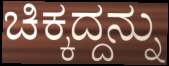
ಚಿಕ್ಕದ್ದನ್ನು